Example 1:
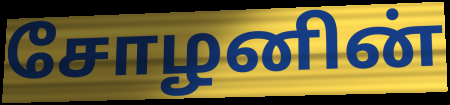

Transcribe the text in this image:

சோழனின்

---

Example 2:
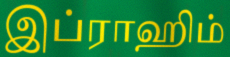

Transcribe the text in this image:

இப்ராஹிம்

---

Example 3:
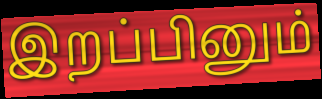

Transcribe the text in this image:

இறப்பினும்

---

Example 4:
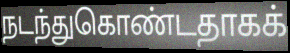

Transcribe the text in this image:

நடந்துகொண்டதாகக்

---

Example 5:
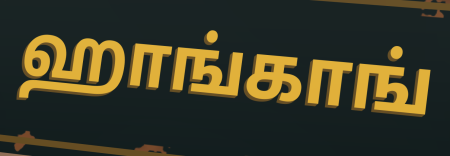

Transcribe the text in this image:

ஹாங்காங்